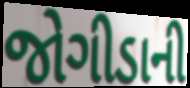
જોગીડાની